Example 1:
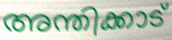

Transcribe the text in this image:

അന്തിക്കാട്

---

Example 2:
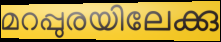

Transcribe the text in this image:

മറപ്പുരയിലേക്കു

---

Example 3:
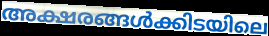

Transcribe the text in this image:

അക്ഷരങ്ങൾക്കിടയിലെ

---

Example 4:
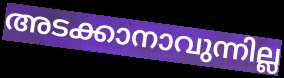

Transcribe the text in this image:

അടക്കാനാവുന്നില്ല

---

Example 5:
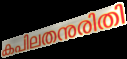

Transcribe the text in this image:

കപിലതനുരിതി